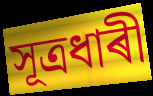
সূত্ৰধাৰী